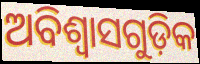
ଅବିଶ୍ଵାସଗୁଡ଼ିକ